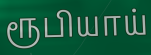
ரூபியாய்